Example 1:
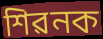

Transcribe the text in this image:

শিৱনক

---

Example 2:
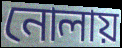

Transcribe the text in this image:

নোলায়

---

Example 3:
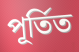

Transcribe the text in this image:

পূৰ্তিত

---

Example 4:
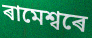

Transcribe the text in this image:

ৰামেশ্বৰে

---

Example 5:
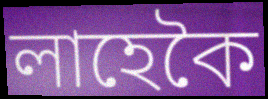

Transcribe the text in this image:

লাহেকৈ